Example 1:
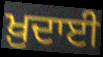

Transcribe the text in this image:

ਖ਼ੁਦਾਈ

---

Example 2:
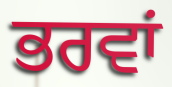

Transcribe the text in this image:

ਭਰਵਾਂ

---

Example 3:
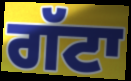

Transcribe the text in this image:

ਗੱਟਾ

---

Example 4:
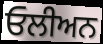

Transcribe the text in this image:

ਓਲੀਅਨ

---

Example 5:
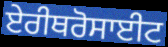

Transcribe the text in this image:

ਏਰੀਥਰੋਸਾਈਟ